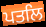
ਪਤਲਿ